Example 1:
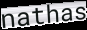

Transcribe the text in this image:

nathas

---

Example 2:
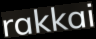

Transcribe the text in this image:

rakkai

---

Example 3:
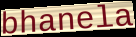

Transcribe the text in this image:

bhanela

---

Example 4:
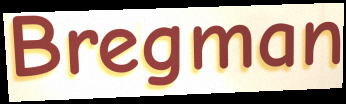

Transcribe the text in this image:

Bregman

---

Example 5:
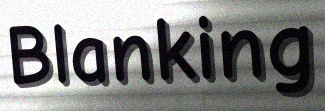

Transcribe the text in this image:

Blanking